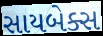
સાયબેક્સ